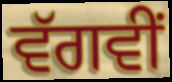
ਵੱਗਵੀਂ